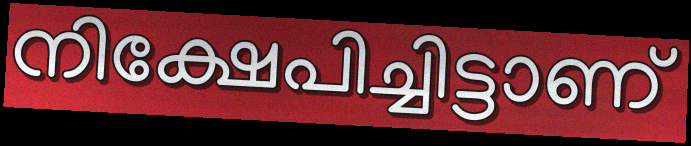
നിക്ഷേപിച്ചിട്ടാണ്